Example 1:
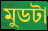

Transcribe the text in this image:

মুডটা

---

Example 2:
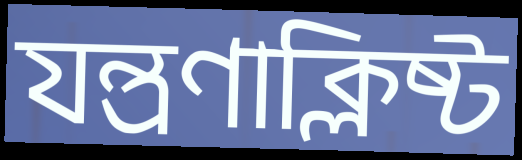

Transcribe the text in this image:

যন্ত্রণাক্লিষ্ট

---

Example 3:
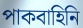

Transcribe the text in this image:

পাকবাহিনি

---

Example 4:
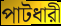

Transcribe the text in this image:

পাটধারী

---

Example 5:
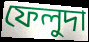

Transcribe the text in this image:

ফেলুদা